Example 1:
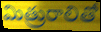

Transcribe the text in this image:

మిత్రురాలితో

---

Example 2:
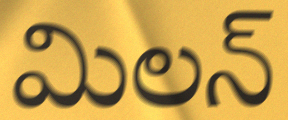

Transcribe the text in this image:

మిలన్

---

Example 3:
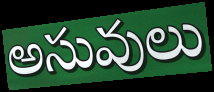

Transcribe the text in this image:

అసువులు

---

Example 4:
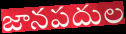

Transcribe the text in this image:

జానపదుల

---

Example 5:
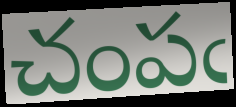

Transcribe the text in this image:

చంపఁ